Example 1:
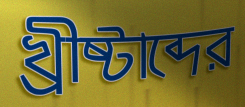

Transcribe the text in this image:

খ্রীষ্টাব্দের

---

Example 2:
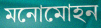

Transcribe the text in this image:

মনোমোহন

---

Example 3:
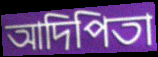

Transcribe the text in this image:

আদিপিতা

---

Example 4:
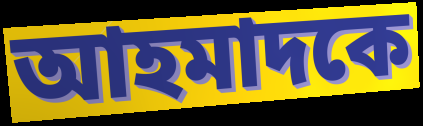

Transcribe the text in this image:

আহমাদকে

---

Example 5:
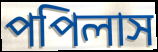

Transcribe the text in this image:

পপিলাস